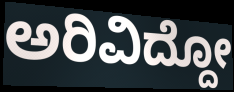
ಅರಿವಿದ್ದೋ